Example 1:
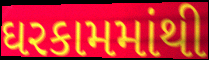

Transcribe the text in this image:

ઘરકામમાંથી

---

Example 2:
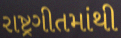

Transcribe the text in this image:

રાષ્ટ્રગીતમાંથી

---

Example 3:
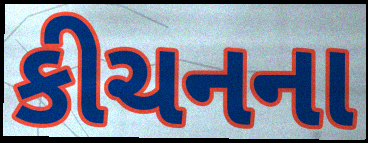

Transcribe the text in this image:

કીચનના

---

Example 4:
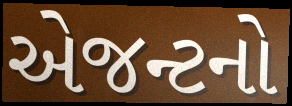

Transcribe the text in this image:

એજન્ટનો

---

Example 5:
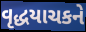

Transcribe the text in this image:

વૃદ્ધયાચકને